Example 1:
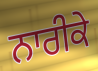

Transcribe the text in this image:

ਨਾਰੀਕੇ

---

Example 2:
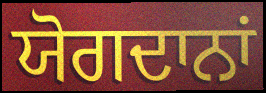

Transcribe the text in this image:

ਯੋਗਦਾਨਾਂ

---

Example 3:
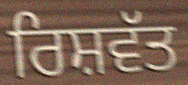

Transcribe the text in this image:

ਰਿਸ਼ਵੱਤ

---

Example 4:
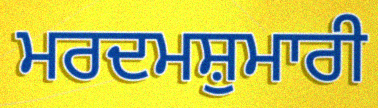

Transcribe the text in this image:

ਮਰਦਮਸ਼ੁਮਾਰੀ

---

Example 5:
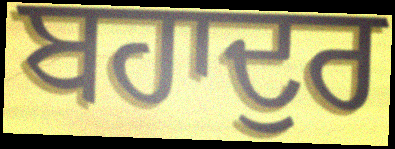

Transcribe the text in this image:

ਬਹਾਦੁਰ